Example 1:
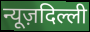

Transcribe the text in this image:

न्यूज़दिल्ली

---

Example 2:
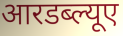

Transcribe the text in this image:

आरडब्ल्यूए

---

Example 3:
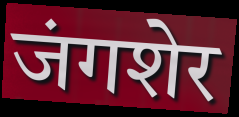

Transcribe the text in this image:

जंगशेर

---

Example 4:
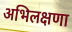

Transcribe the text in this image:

अभिलक्षणा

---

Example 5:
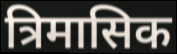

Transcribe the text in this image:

त्रिमासिक